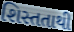
શિસ્તતાથી